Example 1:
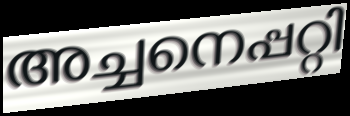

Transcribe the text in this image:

അച്ചനെപ്പറ്റി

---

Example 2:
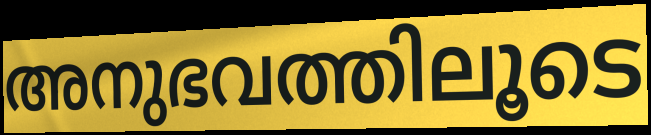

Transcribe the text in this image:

അനുഭവത്തിലൂടെ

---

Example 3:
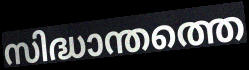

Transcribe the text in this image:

സിദ്ധാന്തത്തെ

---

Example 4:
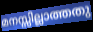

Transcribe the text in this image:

മനസ്സില്ലാത്തതു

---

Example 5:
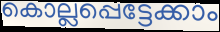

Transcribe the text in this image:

കൊല്ലപ്പെട്ടേക്കാം